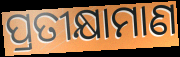
ପ୍ରତୀକ୍ଷାମାଣ